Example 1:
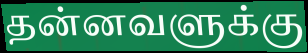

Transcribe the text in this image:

தன்னவளுக்கு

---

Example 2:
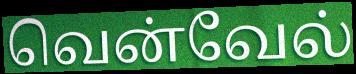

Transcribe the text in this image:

வென்வேல்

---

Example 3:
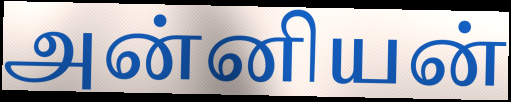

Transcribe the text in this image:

அன்னியன்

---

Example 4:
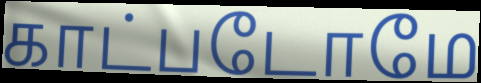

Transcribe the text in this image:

காட்படோமே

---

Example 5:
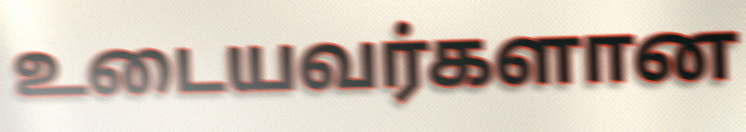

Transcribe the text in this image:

உடையவர்களான